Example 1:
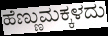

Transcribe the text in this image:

ಹೆಣ್ಣುಮಕ್ಕಳದು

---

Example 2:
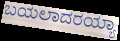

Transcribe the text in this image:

ಬಯಲಾದರಯ್ಯಾ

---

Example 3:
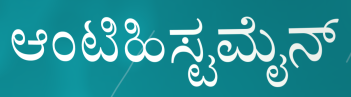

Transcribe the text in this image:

ಆಂಟಿಹಿಸ್ಟಮೈನ್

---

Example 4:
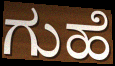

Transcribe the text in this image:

ಗುಹೆ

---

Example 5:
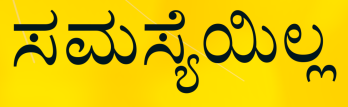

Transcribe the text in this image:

ಸಮಸ್ಯೆಯಿಲ್ಲ